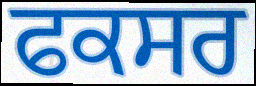
ਫਕਸਰ